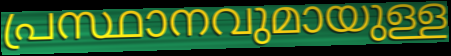
പ്രസ്ഥാനവുമായുള്ള